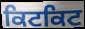
ਕਿਟਕਿਟ